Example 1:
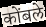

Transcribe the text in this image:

कोंबले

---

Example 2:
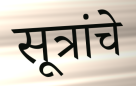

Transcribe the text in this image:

सूत्रांचे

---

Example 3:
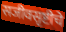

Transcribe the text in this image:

सजीवसृष्टीचे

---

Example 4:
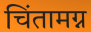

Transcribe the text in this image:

चिंतामग्न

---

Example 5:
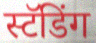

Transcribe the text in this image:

स्टॅडिंग